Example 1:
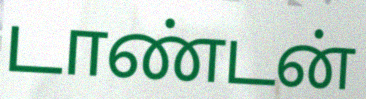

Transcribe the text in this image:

டாண்டன்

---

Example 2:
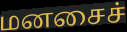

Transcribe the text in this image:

மனசைச்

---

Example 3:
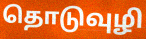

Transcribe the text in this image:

தொடுவுழி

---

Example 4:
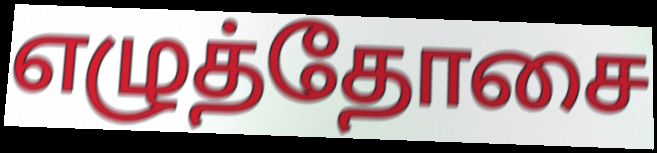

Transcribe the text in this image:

எழுத்தோசை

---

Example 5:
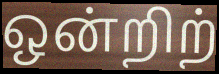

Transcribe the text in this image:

ஒன்றிற்